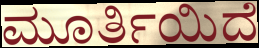
ಮೂರ್ತಿಯಿದೆ